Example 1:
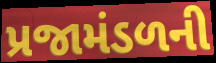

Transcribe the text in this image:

પ્રજામંડળની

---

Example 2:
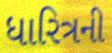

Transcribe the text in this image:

ધારિત્રની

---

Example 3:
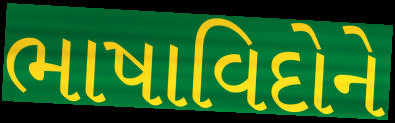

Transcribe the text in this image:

ભાષાવિદોને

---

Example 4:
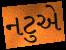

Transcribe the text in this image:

નટુએ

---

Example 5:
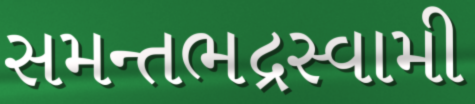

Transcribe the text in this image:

સમન્તભદ્રસ્વામી